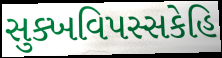
સુક્ખવિપસ્સકેહિ